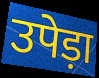
उपेड़ा